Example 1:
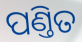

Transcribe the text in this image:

ପଣ୍ତିତ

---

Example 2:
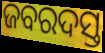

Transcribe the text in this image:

ଜବରଦସ୍ତ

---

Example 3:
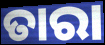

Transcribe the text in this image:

ତାରା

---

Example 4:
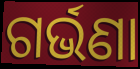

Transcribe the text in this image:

ଗର୍ଭଣା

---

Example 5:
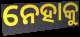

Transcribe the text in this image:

ନେହାକୁ